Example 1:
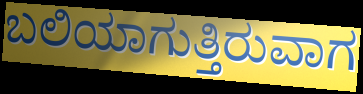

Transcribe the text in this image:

ಬಲಿಯಾಗುತ್ತಿರುವಾಗ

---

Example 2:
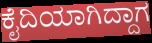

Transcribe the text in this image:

ಕೈದಿಯಾಗಿದ್ದಾಗ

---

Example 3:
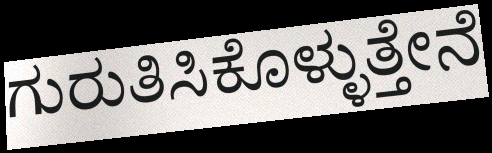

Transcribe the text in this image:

ಗುರುತಿಸಿಕೊಳ್ಳುತ್ತೇನೆ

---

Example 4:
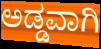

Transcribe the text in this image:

ಅಡ್ಡವಾಗಿ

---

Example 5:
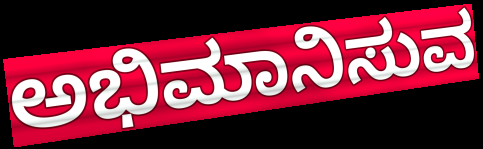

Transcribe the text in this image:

ಅಭಿಮಾನಿಸುವ